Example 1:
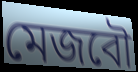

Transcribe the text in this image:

মেজবৌ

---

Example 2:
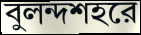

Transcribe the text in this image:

বুলন্দশহরে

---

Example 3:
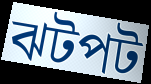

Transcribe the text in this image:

ঝটপট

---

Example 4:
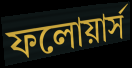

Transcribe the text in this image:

ফলোয়ার্স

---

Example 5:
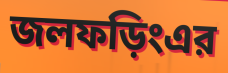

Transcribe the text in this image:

জলফড়িংএর